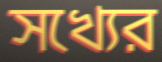
সখ্যের